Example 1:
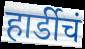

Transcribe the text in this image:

हार्डीचं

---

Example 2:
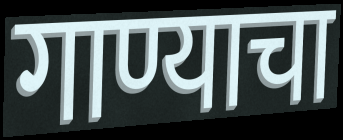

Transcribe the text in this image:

गाण्याचा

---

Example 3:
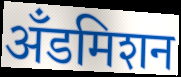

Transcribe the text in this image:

अँडमिशन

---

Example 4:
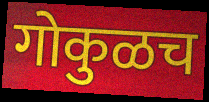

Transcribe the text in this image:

गोकुळच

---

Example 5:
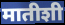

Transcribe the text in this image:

मातीशी